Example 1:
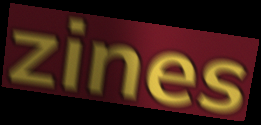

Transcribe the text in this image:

zines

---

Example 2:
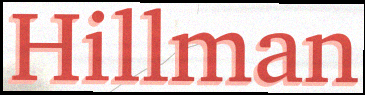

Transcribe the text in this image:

Hillman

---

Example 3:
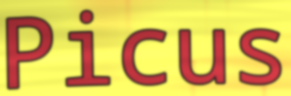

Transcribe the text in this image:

Picus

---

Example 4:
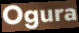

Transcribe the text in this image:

Ogura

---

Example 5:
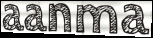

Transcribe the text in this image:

aanma